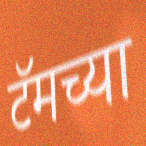
टॅमच्या